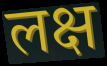
लक्ष